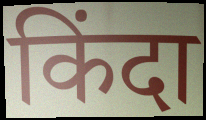
किंदा